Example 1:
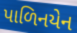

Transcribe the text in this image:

પાળિનયેન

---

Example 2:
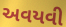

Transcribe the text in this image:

અવયવી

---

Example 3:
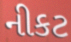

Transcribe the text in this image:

નીકટ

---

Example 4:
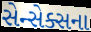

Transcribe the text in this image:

સેન્સેક્સના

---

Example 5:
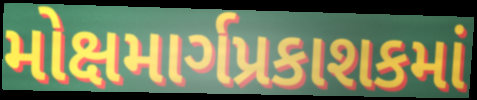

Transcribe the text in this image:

મોક્ષમાર્ગપ્રકાશકમાં